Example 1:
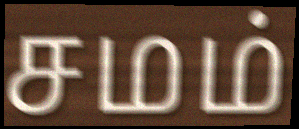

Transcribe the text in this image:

சமம்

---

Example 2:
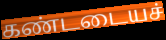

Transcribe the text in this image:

கண்டடையச்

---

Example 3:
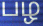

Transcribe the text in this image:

பழ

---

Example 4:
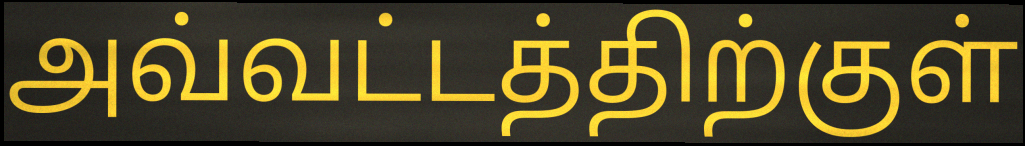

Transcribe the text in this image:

அவ்வட்டத்திற்குள்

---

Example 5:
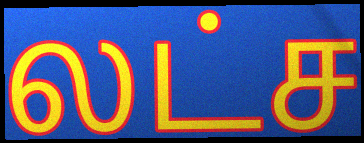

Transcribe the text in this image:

லட்ச